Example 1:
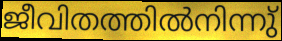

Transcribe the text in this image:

ജീവിതത്തിൽനിന്നു്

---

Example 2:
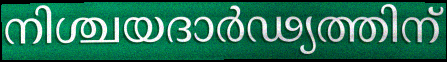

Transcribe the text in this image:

നിശ്ചയദാർഢ്യത്തിന്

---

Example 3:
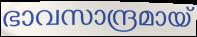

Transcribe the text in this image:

ഭാവസാന്ദ്രമായ്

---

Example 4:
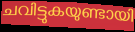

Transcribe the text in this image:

ചവിട്ടുകയുണ്ടായി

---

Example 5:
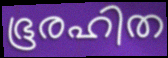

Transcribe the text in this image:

ഭൂരഹിത